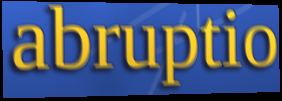
abruptio